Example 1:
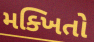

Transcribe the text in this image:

મક્ખિતો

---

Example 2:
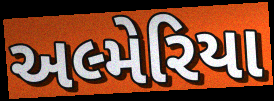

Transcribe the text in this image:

અલ્મેરિયા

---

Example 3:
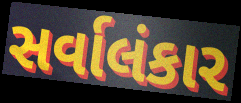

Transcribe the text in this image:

સર્વાલંકાર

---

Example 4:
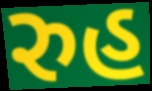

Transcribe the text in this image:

રુહ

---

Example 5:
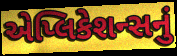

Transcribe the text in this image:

એપ્લિકેશન્સનું